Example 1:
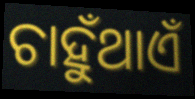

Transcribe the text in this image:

ଚାହୁଁଥାଏଁ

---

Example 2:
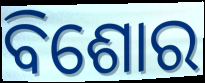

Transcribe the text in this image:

ବିଶୋର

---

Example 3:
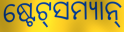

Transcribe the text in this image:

ଷ୍ଟେଟ୍‌ସମ୍ୟାନ୍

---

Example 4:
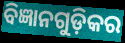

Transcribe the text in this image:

ବିଜ୍ଞାନଗୁଡ଼ିକର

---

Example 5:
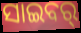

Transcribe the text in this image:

ସାଇବର୍